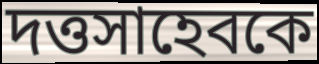
দত্তসাহেবকে